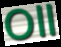
Oll